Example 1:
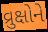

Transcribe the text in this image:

વ્રુક્ષોને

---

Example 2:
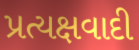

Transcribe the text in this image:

પ્રત્યક્ષવાદી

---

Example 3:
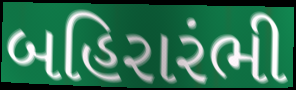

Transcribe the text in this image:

બહિરારંભી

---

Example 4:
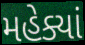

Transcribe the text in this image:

મહેક્યાં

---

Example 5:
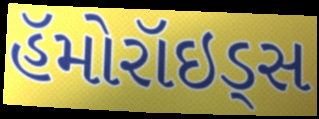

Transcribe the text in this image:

હૅમોરૉઇડ્સ